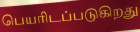
பெயரிடப்படுகிறது